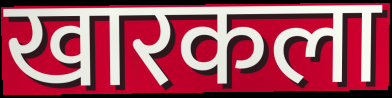
खारकला